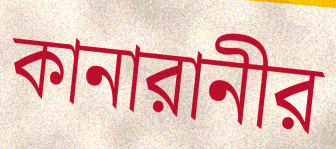
কানারানীর